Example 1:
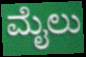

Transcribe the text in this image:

ಮೈಲು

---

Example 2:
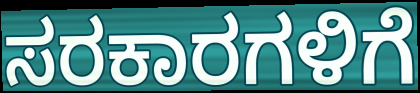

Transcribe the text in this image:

ಸರಕಾರಗಳಿಗೆ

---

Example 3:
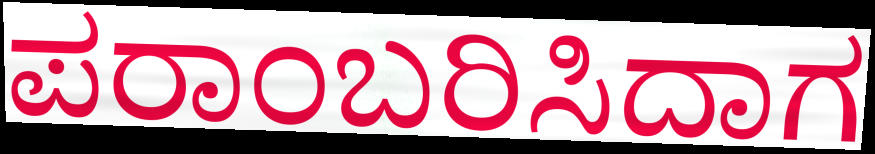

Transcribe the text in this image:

ಪರಾಂಬರಿಸಿದಾಗ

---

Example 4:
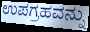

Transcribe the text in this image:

ಉಪಗ್ರಹವನ್ನು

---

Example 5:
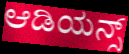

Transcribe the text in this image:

ಆಡಿಯನ್ಸ್